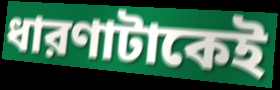
ধারণাটাকেই